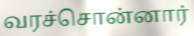
வரச்சொன்னார்